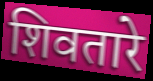
शिवतारे